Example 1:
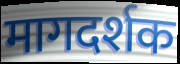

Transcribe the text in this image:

मागदर्शक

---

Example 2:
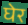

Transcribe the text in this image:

घेर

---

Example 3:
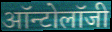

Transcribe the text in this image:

ऑन्टोलॉजी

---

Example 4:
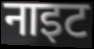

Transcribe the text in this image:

नाइट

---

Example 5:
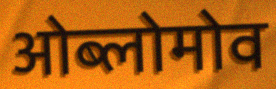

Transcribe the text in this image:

ओब्लोमोव